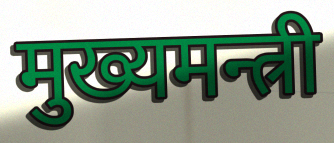
मुख्यमन्त्री